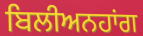
ਬਿਲੀਅਨਹਾਂਗ